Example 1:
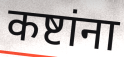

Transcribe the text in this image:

कष्टांना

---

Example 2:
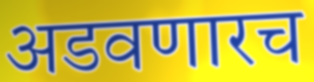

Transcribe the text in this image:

अडवणारच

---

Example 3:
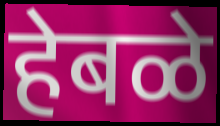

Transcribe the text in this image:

हेबळे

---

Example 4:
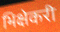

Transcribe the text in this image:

भिक्षेकरी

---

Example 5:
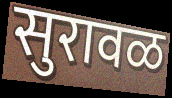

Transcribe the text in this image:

सुरावळ